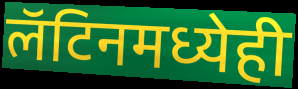
लॅटिनमध्येही